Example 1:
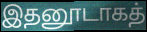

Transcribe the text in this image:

இதனூடாகத்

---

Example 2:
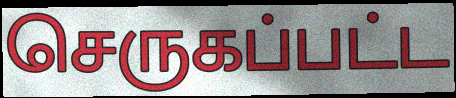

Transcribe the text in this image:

செருகப்பட்ட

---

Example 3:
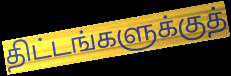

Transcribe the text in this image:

திட்டங்களுக்குத்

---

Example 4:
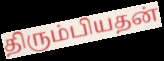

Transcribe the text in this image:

திரும்பியதன்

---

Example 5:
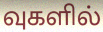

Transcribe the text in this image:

வுகளில்